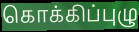
கொக்கிப்புழு